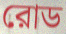
রোড